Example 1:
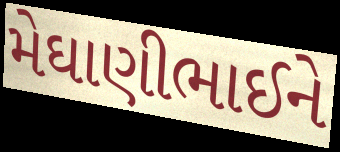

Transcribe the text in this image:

મેઘાણીભાઈને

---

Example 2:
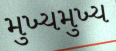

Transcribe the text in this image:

મુખ્યમુખ્ય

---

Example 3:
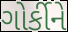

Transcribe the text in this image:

ગોર્કીને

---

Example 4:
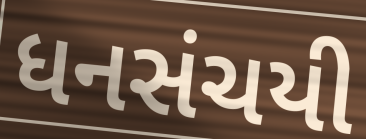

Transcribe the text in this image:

ધનસંચયી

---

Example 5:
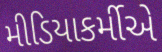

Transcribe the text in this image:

મીડિયાકર્મીએ